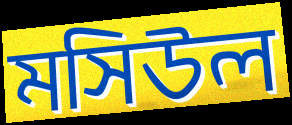
মসিউল